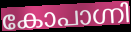
കോപാഗ്നി